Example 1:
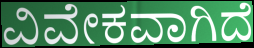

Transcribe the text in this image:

ವಿವೇಕವಾಗಿದೆ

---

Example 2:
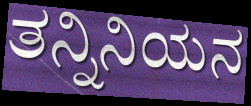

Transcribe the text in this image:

ತನ್ನಿನಿಯನ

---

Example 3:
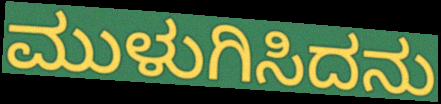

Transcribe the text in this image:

ಮುಳುಗಿಸಿದನು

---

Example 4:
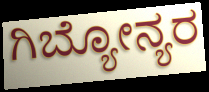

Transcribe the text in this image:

ಗಿಬ್ಯೋನ್ಯರ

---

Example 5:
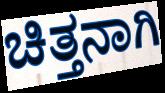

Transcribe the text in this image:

ಚಿತ್ತನಾಗಿ